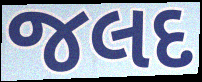
જલદ